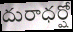
దురాధర్షో